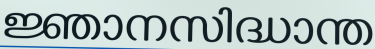
ജ്ഞാനസിദ്ധാന്ത